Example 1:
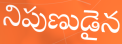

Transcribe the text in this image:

నిపుణుడైన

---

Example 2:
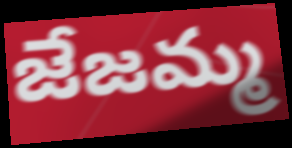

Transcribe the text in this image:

జేజమ్మ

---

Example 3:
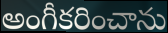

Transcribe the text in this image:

అంగీకరించాను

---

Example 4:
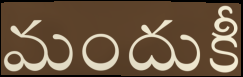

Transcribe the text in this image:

మందుకీ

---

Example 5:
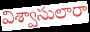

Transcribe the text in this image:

విశ్వాసులారా